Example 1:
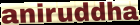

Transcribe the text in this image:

aniruddha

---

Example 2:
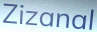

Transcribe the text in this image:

Zizanal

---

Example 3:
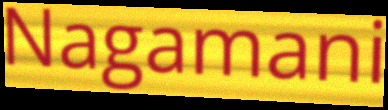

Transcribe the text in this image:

Nagamani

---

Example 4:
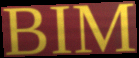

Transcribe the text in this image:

BIM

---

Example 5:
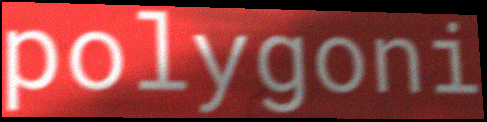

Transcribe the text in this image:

polygoni